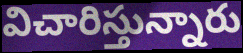
విచారిస్తున్నారు